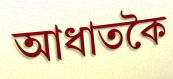
আধাতকৈ